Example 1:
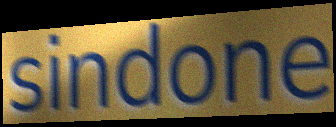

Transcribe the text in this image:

sindone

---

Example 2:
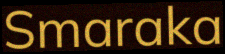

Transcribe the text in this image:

Smaraka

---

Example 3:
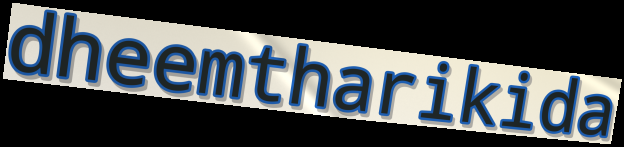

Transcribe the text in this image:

dheemtharikida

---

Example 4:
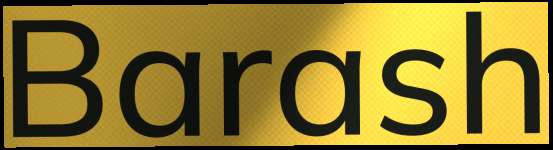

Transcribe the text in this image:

Barash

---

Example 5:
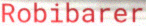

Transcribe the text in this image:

Robibarer